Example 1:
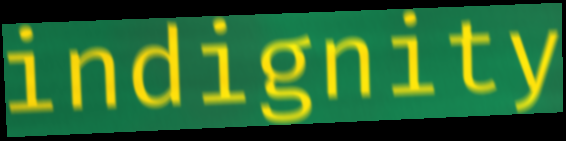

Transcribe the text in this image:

indignity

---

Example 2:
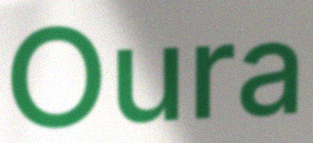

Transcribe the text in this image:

Oura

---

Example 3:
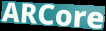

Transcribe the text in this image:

ARCore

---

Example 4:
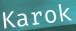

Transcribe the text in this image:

Karok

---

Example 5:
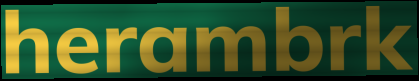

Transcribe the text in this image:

herambrk